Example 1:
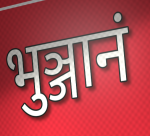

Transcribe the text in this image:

भुञ्जानं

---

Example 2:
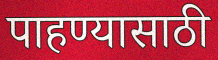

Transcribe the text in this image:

पाहण्यासाठी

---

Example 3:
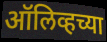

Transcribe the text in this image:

ऑलिव्हच्या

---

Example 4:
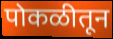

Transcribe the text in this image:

पोकळीतून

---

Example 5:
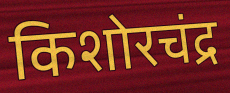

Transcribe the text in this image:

किशोरचंद्र